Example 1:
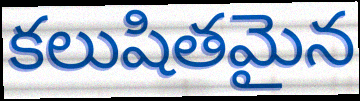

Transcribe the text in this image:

కలుషితమైన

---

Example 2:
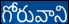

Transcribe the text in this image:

గోరువాని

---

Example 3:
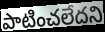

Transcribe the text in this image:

పాటించలేదని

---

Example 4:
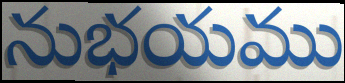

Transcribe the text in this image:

నుభయము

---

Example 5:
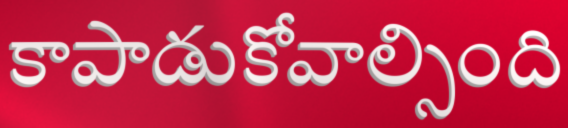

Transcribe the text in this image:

కాపాడుకోవాల్సింది